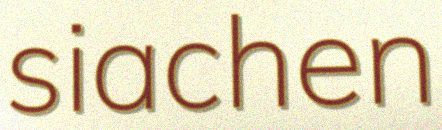
siachen